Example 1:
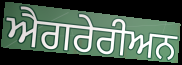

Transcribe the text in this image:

ਐਗਰੇਰੀਅਨ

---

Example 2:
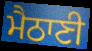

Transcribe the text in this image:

ਮੈਠਾਣੀ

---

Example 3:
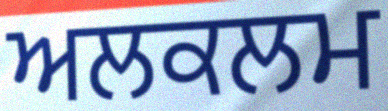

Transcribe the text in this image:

ਅਲਕਲਮ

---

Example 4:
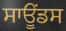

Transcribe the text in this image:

ਸਾਊਂਡਸ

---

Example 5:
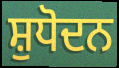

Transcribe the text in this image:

ਸ਼ੁਧੋਦਨ